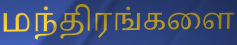
மந்திரங்களை